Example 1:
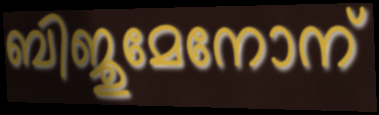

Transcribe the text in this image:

ബിജുമേനോന്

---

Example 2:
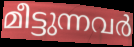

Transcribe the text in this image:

മീട്ടുന്നവർ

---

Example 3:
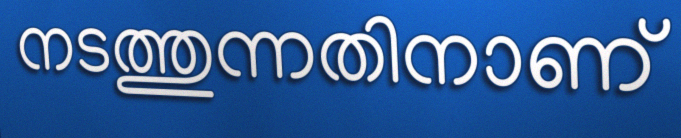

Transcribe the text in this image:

നടത്തുന്നതിനാണ്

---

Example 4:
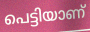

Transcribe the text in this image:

പെട്ടിയാണ്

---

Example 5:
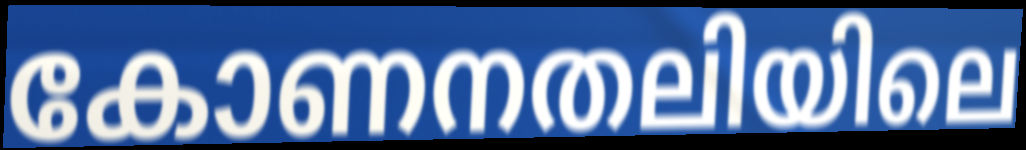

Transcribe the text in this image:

കോണനതലിയിലെ